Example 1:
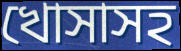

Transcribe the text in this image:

খোসাসহ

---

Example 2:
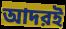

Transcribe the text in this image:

আদরই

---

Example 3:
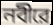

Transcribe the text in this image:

নবীরে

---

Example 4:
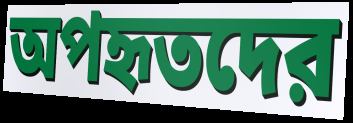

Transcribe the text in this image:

অপহৃতদের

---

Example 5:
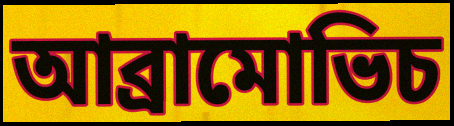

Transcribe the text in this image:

আব্রামোভিচ